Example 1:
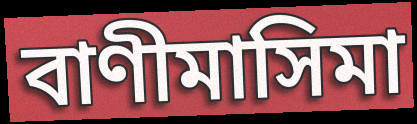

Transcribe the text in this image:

বাণীমাসিমা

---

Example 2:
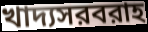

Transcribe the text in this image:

খাদ্যসরবরাহ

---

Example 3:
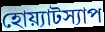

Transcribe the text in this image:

হোয়্যাটস্যাপ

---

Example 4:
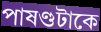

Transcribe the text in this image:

পাষণ্ডটাকে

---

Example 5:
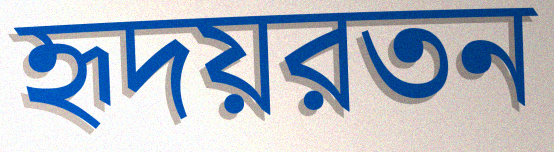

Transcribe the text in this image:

হৃদয়রতন